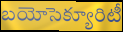
బయోసెక్యూరిటీ